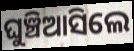
ଘୁଞ୍ଚିଆସିଲେ